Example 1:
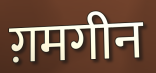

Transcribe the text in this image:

ग़मगीन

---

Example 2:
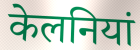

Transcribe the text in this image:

केलनियां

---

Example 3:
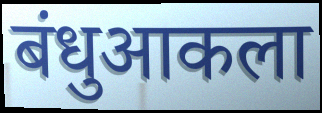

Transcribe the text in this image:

बंधुआकला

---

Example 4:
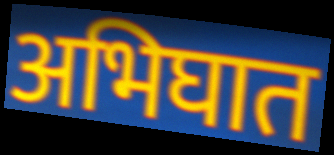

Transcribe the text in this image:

अभिघात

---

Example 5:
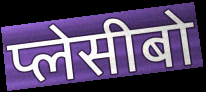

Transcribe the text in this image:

प्लेसीबो